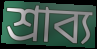
শ্রাব্য